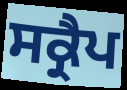
ਸਕ੍ਰੈਪ